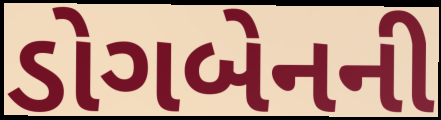
ડોગબેનની